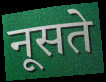
नूसते